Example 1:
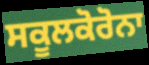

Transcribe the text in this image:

ਸਕੂਲਕੋਰੋਨਾ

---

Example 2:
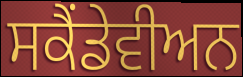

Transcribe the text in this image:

ਸਕੈਂਡੇਵੀਅਨ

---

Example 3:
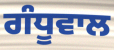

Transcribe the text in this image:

ਗੰਧੂਵਾਲ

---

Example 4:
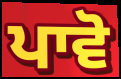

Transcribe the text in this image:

ਪਾਵੋ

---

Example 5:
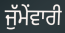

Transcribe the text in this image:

ਜੁੱਮੇਂਵਾਰੀ